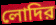
লোদির